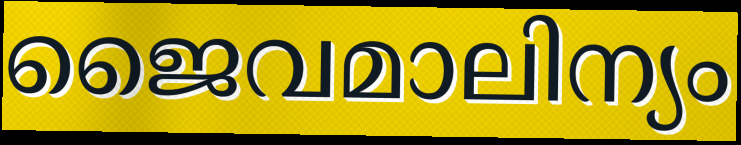
ജൈവമാലിന്യം